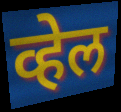
व्हेल